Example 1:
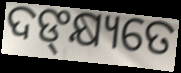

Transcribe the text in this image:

ଦଙ୍କ୍ଷ୍ଯତେ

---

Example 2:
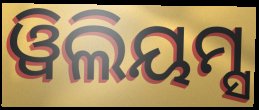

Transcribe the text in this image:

ୱିଲିୟମ୍ସ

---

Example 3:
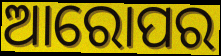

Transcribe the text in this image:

ଆରୋପର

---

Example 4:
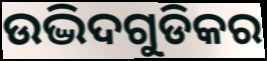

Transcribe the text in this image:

ଉଦ୍ଭିଦଗୁଡିକର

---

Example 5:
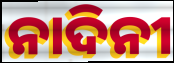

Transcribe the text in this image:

ନାଦିନୀ